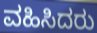
ವಹಿಸಿದರು